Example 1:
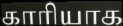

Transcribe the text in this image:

காரியாக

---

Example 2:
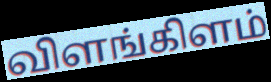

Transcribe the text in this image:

விளங்கிளம்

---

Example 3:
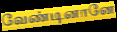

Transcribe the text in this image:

வேண்டினானே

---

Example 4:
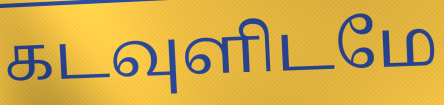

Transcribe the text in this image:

கடவுளிடமே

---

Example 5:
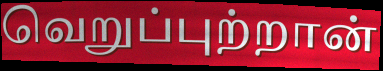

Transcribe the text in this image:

வெறுப்புற்றான்